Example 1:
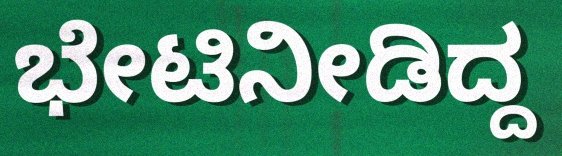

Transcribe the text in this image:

ಭೇಟಿನೀಡಿದ್ದ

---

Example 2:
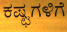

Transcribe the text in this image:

ಕಷ್ಟಗಳಿಗೆ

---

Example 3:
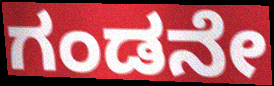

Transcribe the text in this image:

ಗಂಡನೇ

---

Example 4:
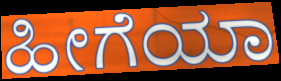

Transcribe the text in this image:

ಹೀಗೆಯಾ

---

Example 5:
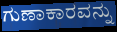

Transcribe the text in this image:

ಗುಣಾಕಾರವನ್ನು